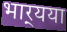
भार्यया